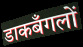
डाकबँगलों